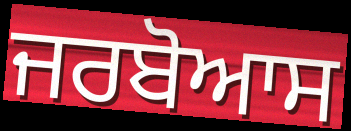
ਜਰਬੋਆਸ